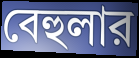
বেহুলার